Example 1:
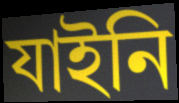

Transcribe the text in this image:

যাইনি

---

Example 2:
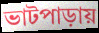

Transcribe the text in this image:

ভাটপাড়ায়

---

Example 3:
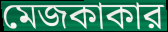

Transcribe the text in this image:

মেজকাকার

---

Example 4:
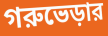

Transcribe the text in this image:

গরুভেড়ার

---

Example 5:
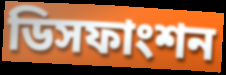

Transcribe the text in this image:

ডিসফাংশন